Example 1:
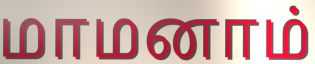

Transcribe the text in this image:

மாமனாம்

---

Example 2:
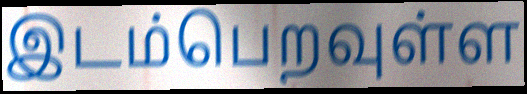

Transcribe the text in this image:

இடம்பெறவுள்ள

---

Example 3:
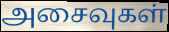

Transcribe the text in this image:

அசைவுகள்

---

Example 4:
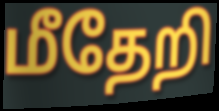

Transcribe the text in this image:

மீதேறி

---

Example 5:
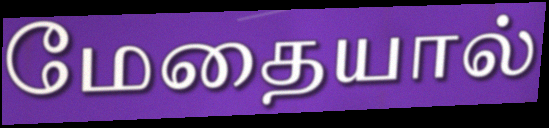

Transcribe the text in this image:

மேதையால்